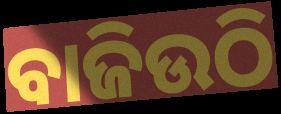
ବାଜିଉଠି